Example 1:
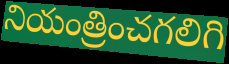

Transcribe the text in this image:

నియంత్రించగలిగి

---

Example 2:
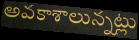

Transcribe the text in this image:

అవకాశాలున్నట్లు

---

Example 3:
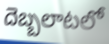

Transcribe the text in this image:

దెబ్బలాటలో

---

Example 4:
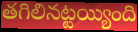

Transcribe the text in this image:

తగిలినట్టయ్యింది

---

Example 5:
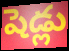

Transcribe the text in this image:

షెడ్లు